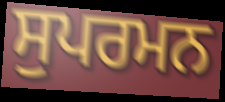
ਸੁਪਰਮਨ